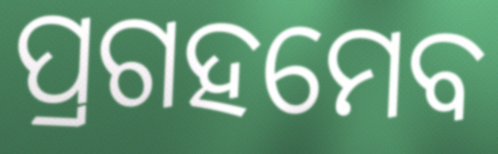
ପ୍ରଗହମେବ